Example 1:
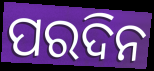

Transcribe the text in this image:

ପରଦିନ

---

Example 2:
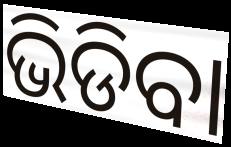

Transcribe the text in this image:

ଭିଡିବା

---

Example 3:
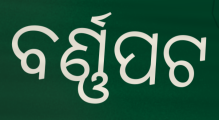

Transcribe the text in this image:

ବର୍ଣ୍ଣପଟ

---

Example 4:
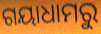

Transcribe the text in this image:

ଗୟାଧାମରୁ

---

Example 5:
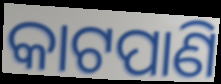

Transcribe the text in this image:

କାଟପାଣି